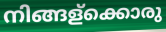
നിങ്ങള്ക്കൊരു